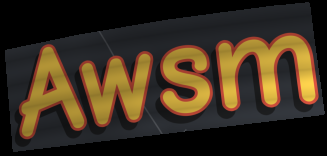
Awsm